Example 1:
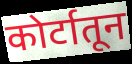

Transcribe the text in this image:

कोर्टातून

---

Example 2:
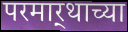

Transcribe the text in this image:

परमार्थाच्या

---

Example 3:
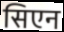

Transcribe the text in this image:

सिएन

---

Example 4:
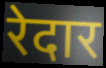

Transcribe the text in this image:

रेदार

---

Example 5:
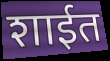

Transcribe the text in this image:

शाईत